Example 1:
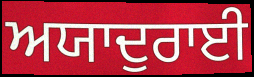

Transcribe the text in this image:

ਅਯਾਦੁਰਾਈ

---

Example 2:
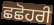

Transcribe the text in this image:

ਛਛੋਹਰੀ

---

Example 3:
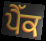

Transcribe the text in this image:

ਪੈੱਕ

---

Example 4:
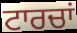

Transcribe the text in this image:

ਟਾਰਚਾਂ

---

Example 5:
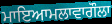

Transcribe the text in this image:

ਮਾਇਆਮਲਾਵਾਗੌਲਾ